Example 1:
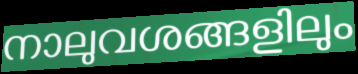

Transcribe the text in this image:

നാലുവശങ്ങളിലും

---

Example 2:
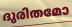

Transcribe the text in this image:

ദുരിതമോ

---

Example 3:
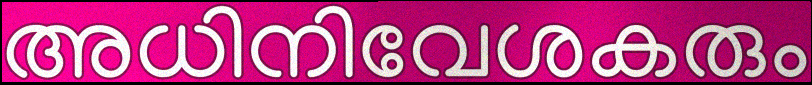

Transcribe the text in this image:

അധിനിവേശകരും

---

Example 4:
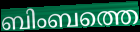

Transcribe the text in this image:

ബിംബത്തെ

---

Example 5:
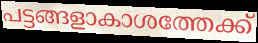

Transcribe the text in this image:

പട്ടങ്ങളാകാശത്തേക്ക്